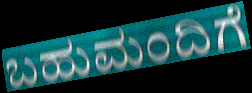
ಬಹುಮಂದಿಗೆ